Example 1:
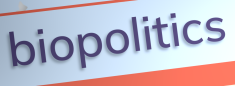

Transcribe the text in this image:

biopolitics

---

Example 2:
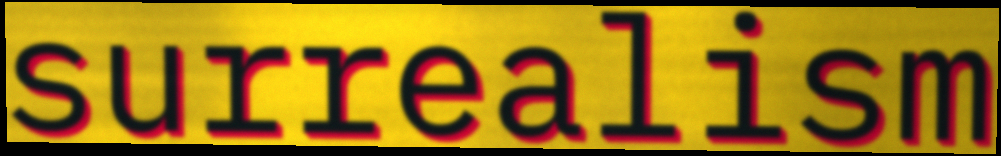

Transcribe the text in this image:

surrealism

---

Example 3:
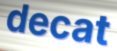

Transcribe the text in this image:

decat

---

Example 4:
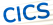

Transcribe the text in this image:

CICS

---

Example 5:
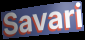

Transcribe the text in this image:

Savari